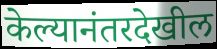
केल्यानंतरदेखील